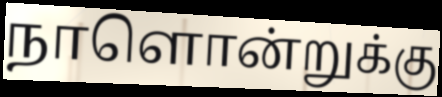
நாளொன்றுக்கு